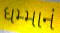
ધમ્માનં